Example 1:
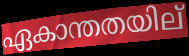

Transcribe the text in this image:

ഏകാന്തതയില്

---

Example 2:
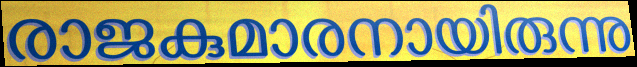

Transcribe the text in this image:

രാജകുമാരനായിരുന്നു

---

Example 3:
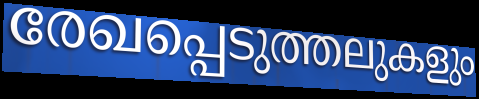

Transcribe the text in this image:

രേഖപ്പെടുത്തലുകളും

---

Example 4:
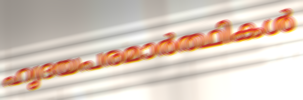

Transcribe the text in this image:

ഹൃദയപരമാർത്ഥികൾ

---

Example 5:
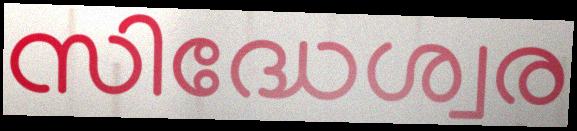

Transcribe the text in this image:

സിദ്ധേശ്വര